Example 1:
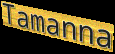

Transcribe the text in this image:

Tamanna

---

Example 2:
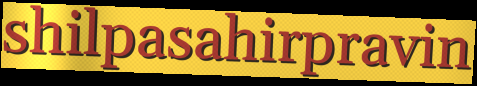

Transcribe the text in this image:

shilpasahirpravin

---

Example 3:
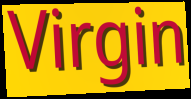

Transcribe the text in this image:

Virgin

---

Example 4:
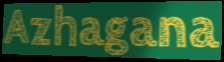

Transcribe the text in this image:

Azhagana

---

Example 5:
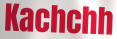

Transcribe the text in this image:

Kachchh